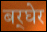
बर्घेर